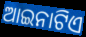
ଆଇନାଟିଏ